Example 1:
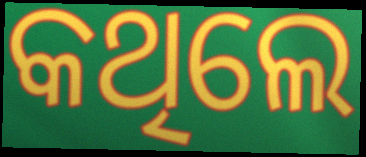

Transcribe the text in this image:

କଥିଲେ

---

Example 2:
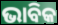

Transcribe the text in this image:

ଭାବିକ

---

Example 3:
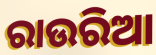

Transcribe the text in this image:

ରାଉରିଆ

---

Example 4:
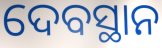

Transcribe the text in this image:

ଦେବସ୍ଥାନ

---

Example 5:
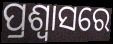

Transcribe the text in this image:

ପ୍ରଶ୍ବାସରେ